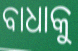
ବାଧାକୁ